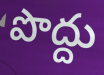
పొద్దు